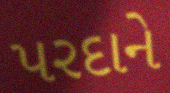
પરદાને